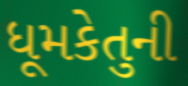
ધૂમકેતુની